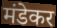
मंडेकर